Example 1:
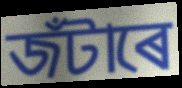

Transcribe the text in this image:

জঁটাৰে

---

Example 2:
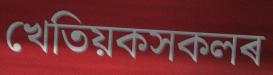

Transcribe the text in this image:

খেতিয়কসকলৰ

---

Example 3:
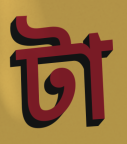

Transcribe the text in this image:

টা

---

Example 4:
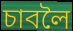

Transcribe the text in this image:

চাবলৈ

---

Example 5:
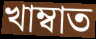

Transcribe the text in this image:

খাম্বাত